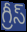
గ్రీస్